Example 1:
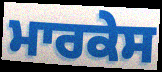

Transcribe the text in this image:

ਮਾਰਕੇਸ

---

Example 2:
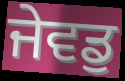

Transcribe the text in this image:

ਜੇਵਡੁ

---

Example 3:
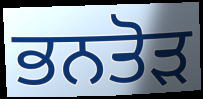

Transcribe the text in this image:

ਭਨਤੋੜ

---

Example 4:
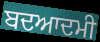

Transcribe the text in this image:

ਬਦਆਦਮੀ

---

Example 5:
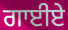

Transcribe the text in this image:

ਗਾਈਏ